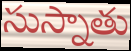
సుస్నాతు